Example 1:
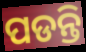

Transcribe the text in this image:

ପଡନ୍ତି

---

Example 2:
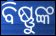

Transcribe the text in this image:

ବିଷ୍ଣୁଙ୍କ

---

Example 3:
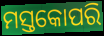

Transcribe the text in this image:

ମସ୍ତକୋପରି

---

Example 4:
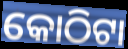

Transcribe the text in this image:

କୋଠିଟା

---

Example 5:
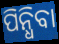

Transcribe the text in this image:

ପିନ୍ଧିବା